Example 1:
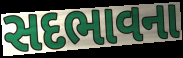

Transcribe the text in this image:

સદભાવના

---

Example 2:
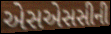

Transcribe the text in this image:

એસએસસીની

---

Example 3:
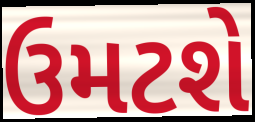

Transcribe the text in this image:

ઉમટશે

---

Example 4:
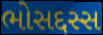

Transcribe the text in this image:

ભોસદ્દસ્સ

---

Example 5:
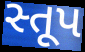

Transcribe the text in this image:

સ્તૂપ